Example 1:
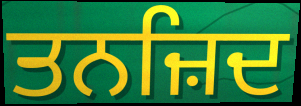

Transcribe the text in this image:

ਤਨਜ਼ਿਦ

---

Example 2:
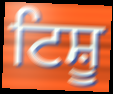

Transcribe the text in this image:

ਟਿਸ਼ੂ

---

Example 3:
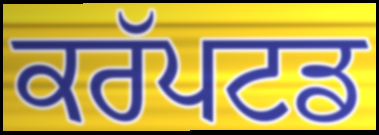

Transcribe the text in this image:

ਕਰੱਪਟਡ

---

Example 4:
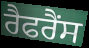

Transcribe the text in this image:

ਰੈਫਰੈਂਸ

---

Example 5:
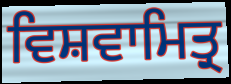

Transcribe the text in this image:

ਵਿਸ਼ਵਾਮਿਤ੍ਰ